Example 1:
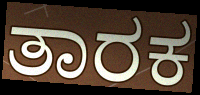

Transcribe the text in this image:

ತಾರಕ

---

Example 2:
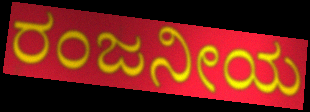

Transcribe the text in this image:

ರಂಜನೀಯ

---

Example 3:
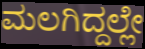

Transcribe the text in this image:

ಮಲಗಿದ್ದಲ್ಲೇ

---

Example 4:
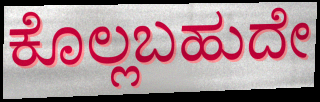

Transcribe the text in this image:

ಕೊಲ್ಲಬಹುದೇ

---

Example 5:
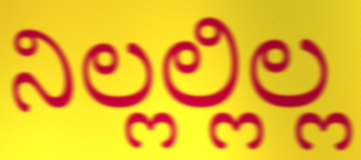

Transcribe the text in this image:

ನಿಲ್ಲಲ್ಲಿಲ್ಲ